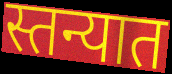
स्तन्यात